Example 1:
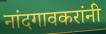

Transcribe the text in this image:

नांदगावकरांनी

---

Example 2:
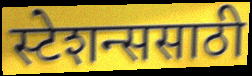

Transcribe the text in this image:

स्टेशन्ससाठी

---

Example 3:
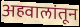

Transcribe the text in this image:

अहवालांतून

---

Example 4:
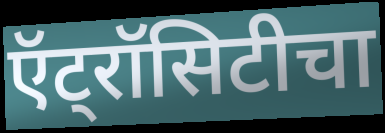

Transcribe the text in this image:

ऍट्रॉसिटीचा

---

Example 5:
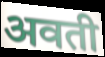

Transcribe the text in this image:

अवती